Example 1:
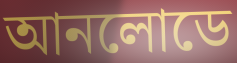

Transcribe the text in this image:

আনলোডে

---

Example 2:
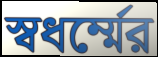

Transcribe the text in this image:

স্বধর্ম্মের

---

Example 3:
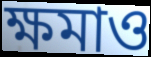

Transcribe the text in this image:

ক্ষমাও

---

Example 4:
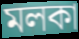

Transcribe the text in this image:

মলকা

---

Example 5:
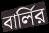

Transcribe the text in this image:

বার্লির